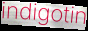
indigotin